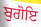
ਬੁਗੋਇ